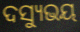
ଦସ୍ୟୁଭୟ